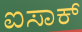
ಐಸಾಕ್